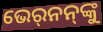
ଭେର୍‍ନନ୍‌ଙ୍କୁ